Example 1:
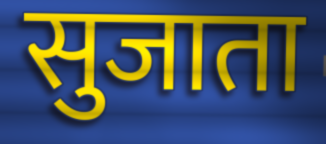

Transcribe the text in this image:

सुजाता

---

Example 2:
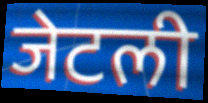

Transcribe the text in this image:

जेटली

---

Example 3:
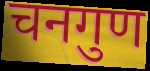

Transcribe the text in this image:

चनगुण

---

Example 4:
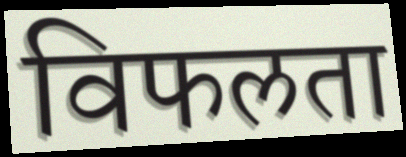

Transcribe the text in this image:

विफलता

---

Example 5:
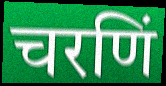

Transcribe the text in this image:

चरणिं